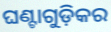
ଘଣ୍ଟାଗୁଡ଼ିକର